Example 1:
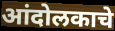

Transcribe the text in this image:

आंदोलकाचे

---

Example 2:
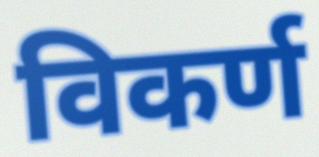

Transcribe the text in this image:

विकर्ण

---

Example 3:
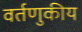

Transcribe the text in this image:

वर्तणुकीय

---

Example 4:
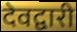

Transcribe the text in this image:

देवद्वारी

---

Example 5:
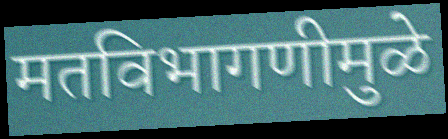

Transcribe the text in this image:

मतविभागणीमुळे